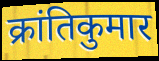
क्रांतिकुमार